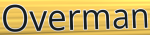
Overman